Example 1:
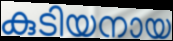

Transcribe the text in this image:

കുടിയനായ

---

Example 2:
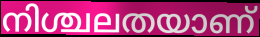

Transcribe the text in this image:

നിശ്ചലതയാണ്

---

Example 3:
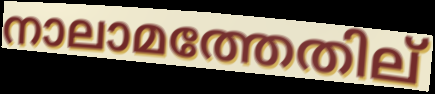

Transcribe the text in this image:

നാലാമത്തേതില്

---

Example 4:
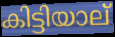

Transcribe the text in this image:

കിട്ടിയാല്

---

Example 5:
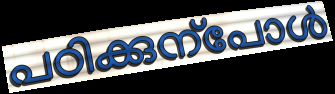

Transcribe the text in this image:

പഠിക്കുന്പോൾ